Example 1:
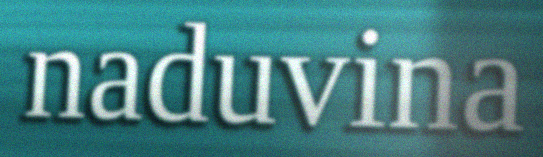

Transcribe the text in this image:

naduvina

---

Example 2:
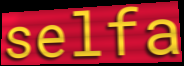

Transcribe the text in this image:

selfa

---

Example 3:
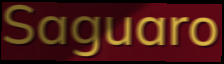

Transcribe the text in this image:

Saguaro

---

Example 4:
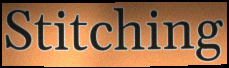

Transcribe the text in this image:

Stitching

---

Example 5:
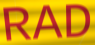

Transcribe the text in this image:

RAD